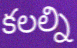
కలల్ని